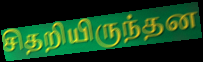
சிதறியிருந்தன